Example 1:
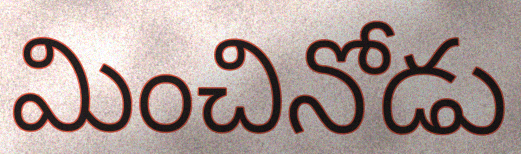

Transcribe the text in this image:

మించినోడు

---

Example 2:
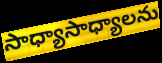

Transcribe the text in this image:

సాధ్యాసాధ్యాలను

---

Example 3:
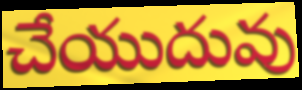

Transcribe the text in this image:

చేయుదువు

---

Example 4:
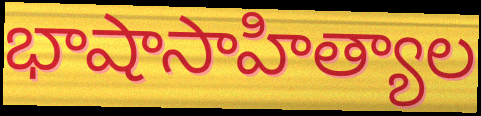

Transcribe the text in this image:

భాషాసాహిత్యాల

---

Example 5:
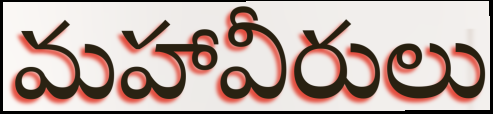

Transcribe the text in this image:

మహావీరులు